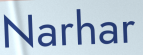
Narhar